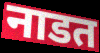
नाडत